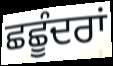
ਛਛੂੰਦਰਾਂ